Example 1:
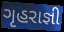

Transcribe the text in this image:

ગૃહરાજ્ઞી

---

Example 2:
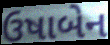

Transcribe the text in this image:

ઉષાબેન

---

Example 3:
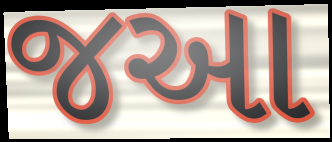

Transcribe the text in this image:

જઆ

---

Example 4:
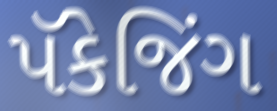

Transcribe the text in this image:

પૅકેજિંગ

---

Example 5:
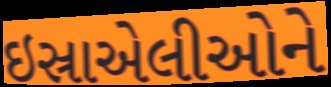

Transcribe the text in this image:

ઇસ્રાએલીઓને